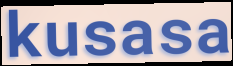
kusasa